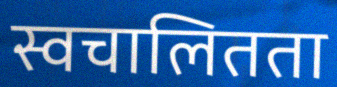
स्वचालितता